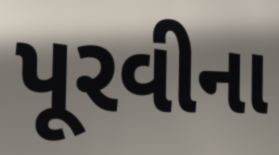
પૂરવીના